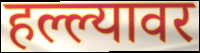
हल्ल्यावर